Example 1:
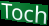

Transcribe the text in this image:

Toch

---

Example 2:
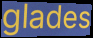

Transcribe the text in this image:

glades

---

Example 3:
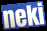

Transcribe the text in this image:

neki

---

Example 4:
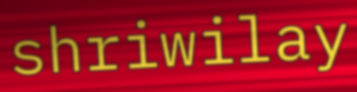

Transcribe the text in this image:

shriwilay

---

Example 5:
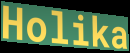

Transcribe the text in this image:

Holika